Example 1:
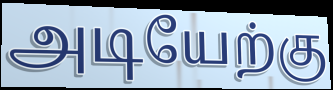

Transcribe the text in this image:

அடியேற்கு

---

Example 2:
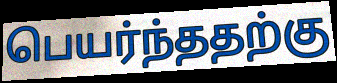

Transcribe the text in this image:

பெயர்ந்ததற்கு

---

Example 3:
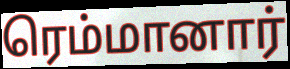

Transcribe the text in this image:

ரெம்மானார்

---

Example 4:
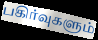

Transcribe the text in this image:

பகிர்வுகளும்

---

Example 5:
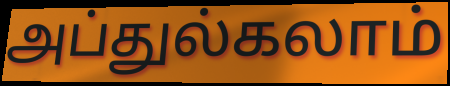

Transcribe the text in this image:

அப்துல்கலாம்